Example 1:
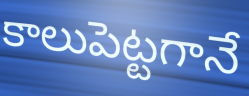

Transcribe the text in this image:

కాలుపెట్టగానే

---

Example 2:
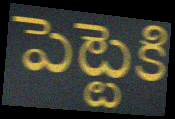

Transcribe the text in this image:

పెట్టెకి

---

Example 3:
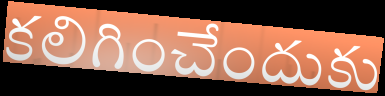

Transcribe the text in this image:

కలిగించేందుకు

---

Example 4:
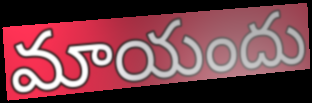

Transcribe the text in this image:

మాయందు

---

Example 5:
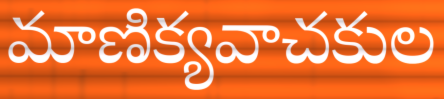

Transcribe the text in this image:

మాణిక్యవాచకుల